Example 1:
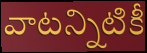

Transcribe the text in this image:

వాటన్నిటికీ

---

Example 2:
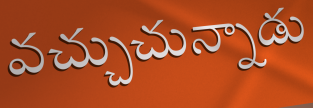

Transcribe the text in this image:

వచ్చుచున్నాడు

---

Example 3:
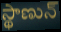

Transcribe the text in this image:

స్థాణున్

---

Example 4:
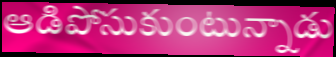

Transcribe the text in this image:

ఆడిపోసుకుంటున్నాడు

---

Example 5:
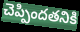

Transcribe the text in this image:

చెప్పిందతనికి